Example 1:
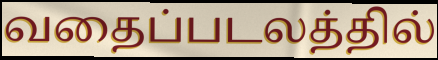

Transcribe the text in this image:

வதைப்படலத்தில்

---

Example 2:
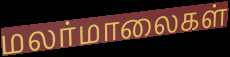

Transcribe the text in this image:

மலர்மாலைகள்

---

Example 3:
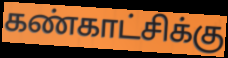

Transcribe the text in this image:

கண்காட்சிக்கு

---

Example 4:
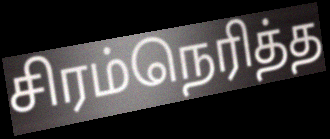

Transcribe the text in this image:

சிரம்நெரித்த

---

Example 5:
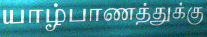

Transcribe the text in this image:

யாழ்பாணத்துக்கு